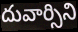
దువార్సిని